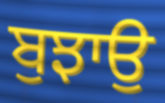
ਬੁਝਾਉ